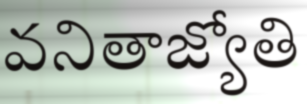
వనితాజ్యోతి